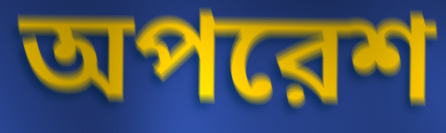
অপরেশ